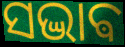
ସଦ୍ଭାଵ